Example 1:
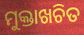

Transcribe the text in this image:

ମୁକ୍ତାଖଚିତ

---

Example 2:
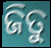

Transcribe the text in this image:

ଜିତୁ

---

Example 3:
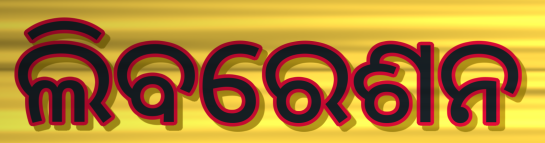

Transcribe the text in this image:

ଲିବରେଶନ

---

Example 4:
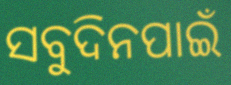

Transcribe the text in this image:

ସବୁଦିନପାଇଁ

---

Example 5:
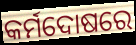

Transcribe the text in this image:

କର୍ମଦୋଷରେ